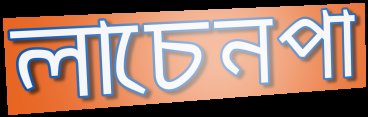
লাচেনপা